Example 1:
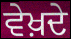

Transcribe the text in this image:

ਵੇਖ਼ਦੇ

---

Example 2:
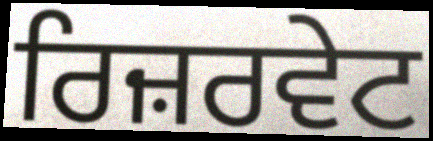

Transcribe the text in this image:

ਰਿਜ਼ਰਵੇਟ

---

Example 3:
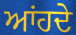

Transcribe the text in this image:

ਆਂਹਦੇ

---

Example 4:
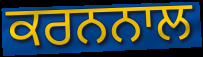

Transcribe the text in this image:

ਕਰਨਨਾਲ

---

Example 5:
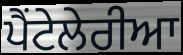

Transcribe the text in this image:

ਪੈਂਟੇਲੇਰੀਆ